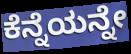
ಕೆನ್ನೆಯನ್ನೇ